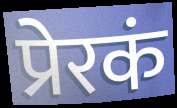
प्रेरकं